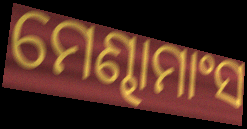
ମେଣ୍ଢାମାଂସ